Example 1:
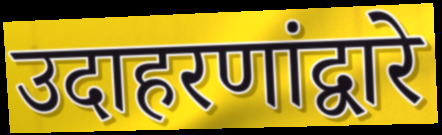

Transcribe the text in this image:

उदाहरणांद्वारे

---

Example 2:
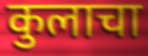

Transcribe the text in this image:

कुलाचा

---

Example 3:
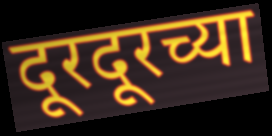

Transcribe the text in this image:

दूरदूरच्या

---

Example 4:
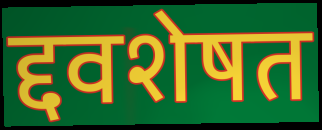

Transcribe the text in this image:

द्दवशेषत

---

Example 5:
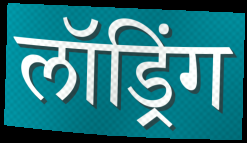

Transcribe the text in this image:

लॉड्रिंग